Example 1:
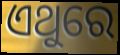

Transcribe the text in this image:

ଏଥୁରେ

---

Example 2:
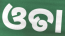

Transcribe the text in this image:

ଓତା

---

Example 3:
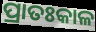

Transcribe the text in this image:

ପ୍ରାତଃକାଳ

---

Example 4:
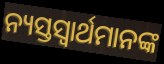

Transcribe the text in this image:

ନ୍ୟସ୍ତସ୍ଵାର୍ଥମାନଙ୍କ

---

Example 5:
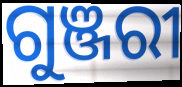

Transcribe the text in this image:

ଗୁଞ୍ଜରୀ